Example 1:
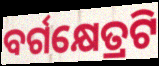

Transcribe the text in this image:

ବର୍ଗକ୍ଷେତ୍ରଟି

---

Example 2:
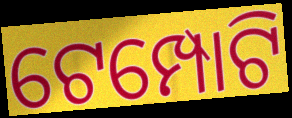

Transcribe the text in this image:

ଟେମ୍ପୋଟି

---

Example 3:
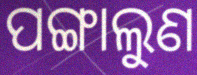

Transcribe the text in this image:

ପଙ୍ଗାଲୁଣ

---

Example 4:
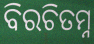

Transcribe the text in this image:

ବିରଚିତମ୍ନ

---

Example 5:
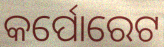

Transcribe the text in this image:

କର୍ପୋରେଟ